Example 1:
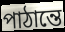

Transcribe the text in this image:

পাঠান্তে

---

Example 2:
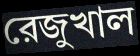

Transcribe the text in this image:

রেজুখাল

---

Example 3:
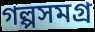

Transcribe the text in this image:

গল্পসমগ্র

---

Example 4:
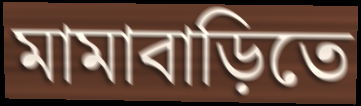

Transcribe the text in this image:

মামাবাড়িতে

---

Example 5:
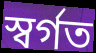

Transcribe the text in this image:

স্বর্গত